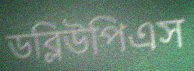
ডব্লিউপিএস